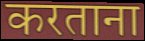
करताना